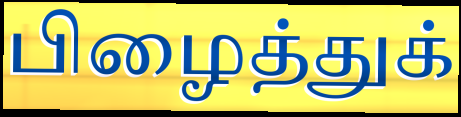
பிழைத்துக்